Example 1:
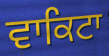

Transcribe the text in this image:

ਵਾਕਿਟਾ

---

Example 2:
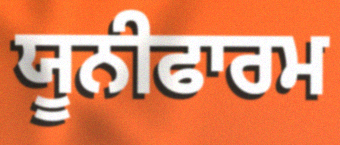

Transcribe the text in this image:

ਯੂਨੀਫਾਰਮ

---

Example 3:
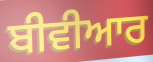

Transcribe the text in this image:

ਬੀਵੀਆਰ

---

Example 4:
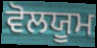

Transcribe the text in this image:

ਵੋਲਯੂਮ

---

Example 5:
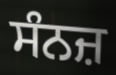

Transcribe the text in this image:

ਸੰਨਜ਼